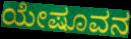
ಯೇಷೂವನ